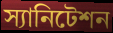
স্যানিটেশন